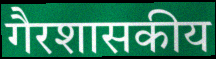
गैरशासकीय